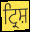
ਟ੍ਰਿਸ਼